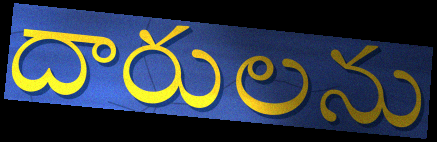
దారులను